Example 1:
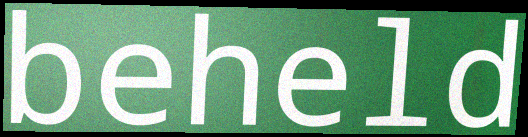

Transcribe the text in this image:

beheld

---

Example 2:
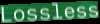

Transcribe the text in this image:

Lossless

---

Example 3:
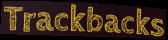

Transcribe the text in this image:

Trackbacks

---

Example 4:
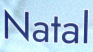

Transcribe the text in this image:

Natal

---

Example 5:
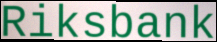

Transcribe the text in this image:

Riksbank